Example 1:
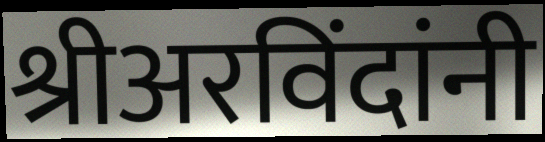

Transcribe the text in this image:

श्रीअरविंदांनी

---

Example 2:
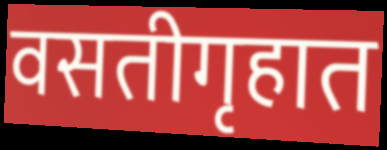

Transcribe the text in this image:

वसतीगृहात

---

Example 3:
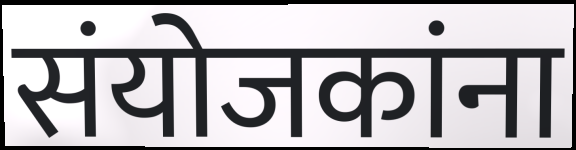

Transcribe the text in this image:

संयोजकांना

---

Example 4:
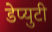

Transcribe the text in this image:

डेप्युटी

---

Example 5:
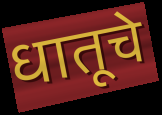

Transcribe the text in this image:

धातूचे